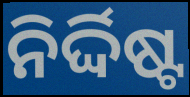
ନିର୍ଦ୍ଦିଷ୍ଟ